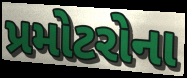
પ્રમોટરોના